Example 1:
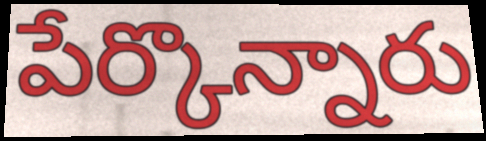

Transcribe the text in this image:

పేర్కొన్నారు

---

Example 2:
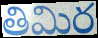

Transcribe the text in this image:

తిమిర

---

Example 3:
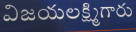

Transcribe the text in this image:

విజయలక్ష్మిగారు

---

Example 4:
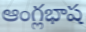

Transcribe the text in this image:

ఆంగ్లభాష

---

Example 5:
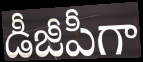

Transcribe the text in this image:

డీజీపీగా